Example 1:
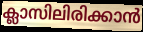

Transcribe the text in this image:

ക്ലാസിലിരിക്കാൻ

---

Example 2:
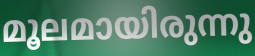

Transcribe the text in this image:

മൂലമായിരുന്നു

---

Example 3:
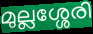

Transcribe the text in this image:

മുല്ലശ്ശേരി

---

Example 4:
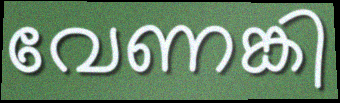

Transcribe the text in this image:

വേണങ്കി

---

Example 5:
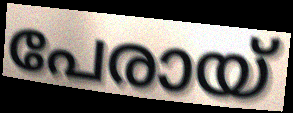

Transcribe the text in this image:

പേരായ്